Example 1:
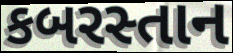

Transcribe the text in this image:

કબરસ્તાન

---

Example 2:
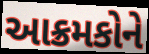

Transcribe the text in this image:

આક્રમકોને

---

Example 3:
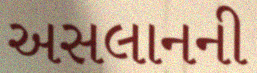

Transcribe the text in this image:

અસલાનની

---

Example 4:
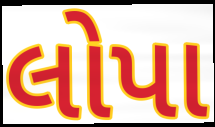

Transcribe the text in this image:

લોપા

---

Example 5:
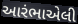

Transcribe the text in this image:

આરંભાએલી